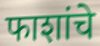
फाशांचे